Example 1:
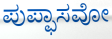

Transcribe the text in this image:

ಪುಪ್ಫಾಸವೋ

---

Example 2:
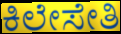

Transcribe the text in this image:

ಕಿಲೇಸೇತಿ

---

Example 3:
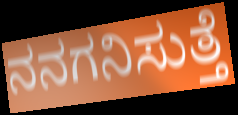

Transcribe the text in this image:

ನನಗನಿಸುತ್ತೆ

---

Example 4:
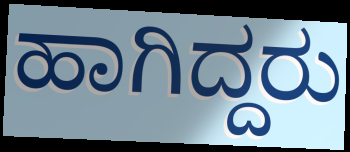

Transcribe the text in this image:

ಹಾಗಿದ್ದರು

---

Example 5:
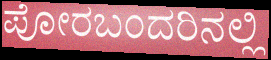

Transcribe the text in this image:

ಪೋರಬಂದರಿನಲ್ಲಿ